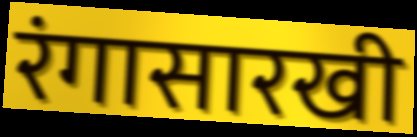
रंगासारखी